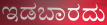
ಇಡಬಾರದು